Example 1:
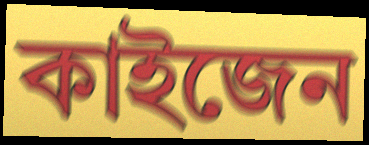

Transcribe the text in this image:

কাইজেন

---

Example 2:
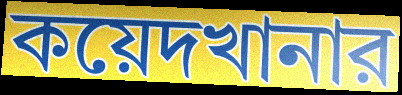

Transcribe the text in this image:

কয়েদখানার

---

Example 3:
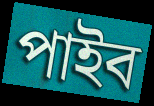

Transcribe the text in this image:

পাইব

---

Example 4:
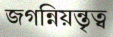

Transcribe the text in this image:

জগন্নিয়ন্তৃত্ব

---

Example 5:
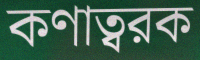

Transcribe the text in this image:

কণাত্বরক